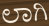
ಲಾಗಿ